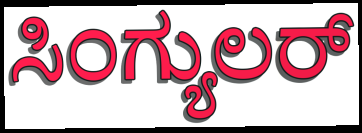
ಸಿಂಗ್ಯುಲರ್